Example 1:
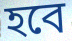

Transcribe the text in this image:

হবে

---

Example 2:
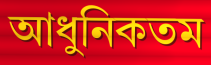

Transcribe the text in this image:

আধুনিকতম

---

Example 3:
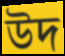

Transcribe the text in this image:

উদ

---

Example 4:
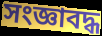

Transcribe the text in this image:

সংজ্ঞাবদ্ধ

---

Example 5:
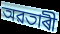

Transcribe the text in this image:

অৱতাৰী